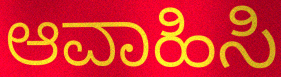
ಆವಾಹಿಸಿ